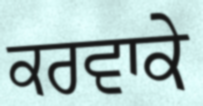
ਕਰਵਾਕੇ